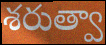
శరుత్వా